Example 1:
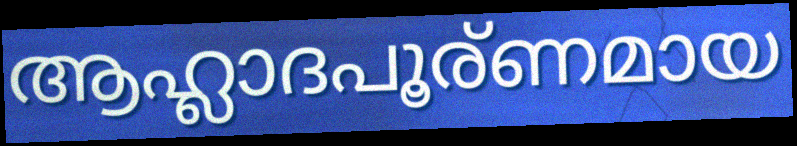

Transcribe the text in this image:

ആഹ്ലാദപൂര്ണമായ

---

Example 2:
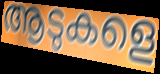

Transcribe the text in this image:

ആടുകളെ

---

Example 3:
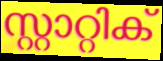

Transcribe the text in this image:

സ്റ്റാറ്റിക്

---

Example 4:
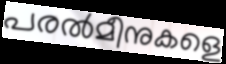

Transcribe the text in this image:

പരൽമീനുകളെ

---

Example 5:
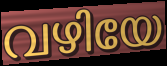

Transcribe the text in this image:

വഴിയേ